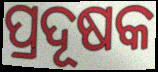
ପ୍ରଦୂଷକ